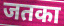
जतका